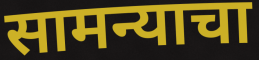
सामन्याचा